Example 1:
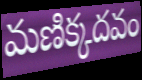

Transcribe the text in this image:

మణిక్కదవం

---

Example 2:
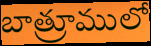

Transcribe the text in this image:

బాత్రూములో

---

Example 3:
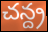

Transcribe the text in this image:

చన్ద్ర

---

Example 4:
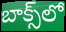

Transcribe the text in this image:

బాక్స్‌లో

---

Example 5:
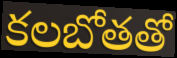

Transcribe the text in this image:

కలబోతతో